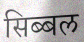
सिब्बल